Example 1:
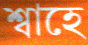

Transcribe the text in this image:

শ্বাহে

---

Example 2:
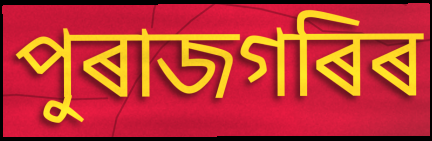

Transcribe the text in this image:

পুৰাজগৰিৰ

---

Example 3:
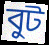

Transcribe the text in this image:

বুট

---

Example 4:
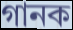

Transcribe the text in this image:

গানক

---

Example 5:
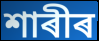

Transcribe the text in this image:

শাৰীৰ